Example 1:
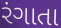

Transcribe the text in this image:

રંગાતા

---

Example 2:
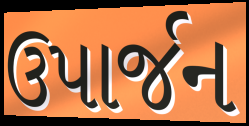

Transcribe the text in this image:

ઉપાર્જન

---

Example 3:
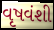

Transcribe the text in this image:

વૃષવંશી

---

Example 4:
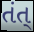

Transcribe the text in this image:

તંત્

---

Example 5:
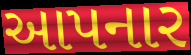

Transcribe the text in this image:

આપનાર